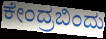
ಕೇಂದ್ರಬಿಂದು